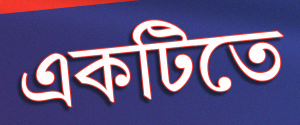
একটিতে